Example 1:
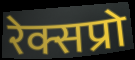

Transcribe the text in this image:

रेक्सप्रो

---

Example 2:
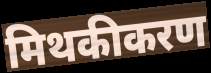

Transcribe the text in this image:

मिथकीकरण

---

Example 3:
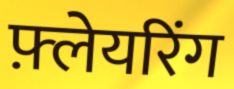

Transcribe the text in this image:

फ़्लेयरिंग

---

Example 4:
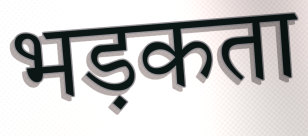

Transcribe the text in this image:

भड़कता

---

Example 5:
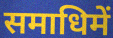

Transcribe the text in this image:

समाधिमें